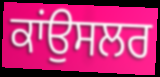
ਕਾਂਉਸਲਰ